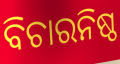
ବିଚାରନିଷ୍ଠ